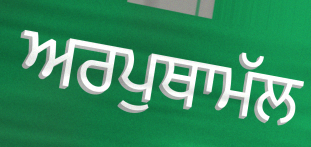
ਅਰਪੁਥਾਮੱਲ